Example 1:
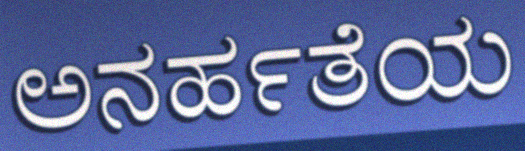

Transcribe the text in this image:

ಅನರ್ಹತೆಯ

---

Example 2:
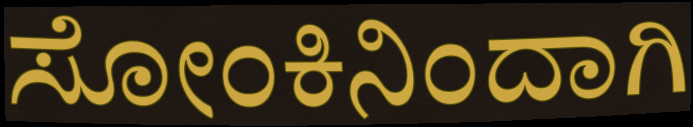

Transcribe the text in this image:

ಸೋಂಕಿನಿಂದಾಗಿ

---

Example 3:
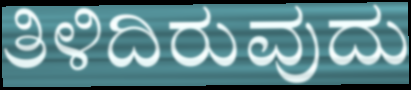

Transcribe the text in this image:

ತಿಳಿದಿರುವುದು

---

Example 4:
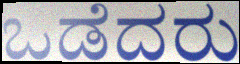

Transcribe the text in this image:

ಒಡೆದರು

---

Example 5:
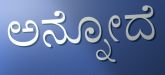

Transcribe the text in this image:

ಅನ್ನೋದೆ